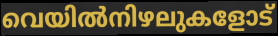
വെയിൽനിഴലുകളോട്